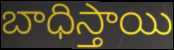
బాధిస్తాయి